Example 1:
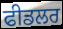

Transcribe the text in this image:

ਫੀਡਲਰ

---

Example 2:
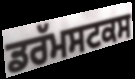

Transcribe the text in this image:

ਡਰੱਮਸਟਕਸ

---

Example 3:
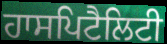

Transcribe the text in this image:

ਹਾਸਪਿਟੈਲਿਟੀ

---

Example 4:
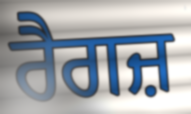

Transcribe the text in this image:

ਰੈਗਜ਼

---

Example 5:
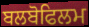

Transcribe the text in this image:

ਬਲਬੋਫਿਲਮ